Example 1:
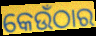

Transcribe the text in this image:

କେଉଁଠାର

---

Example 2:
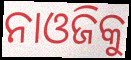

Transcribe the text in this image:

ନାଓଜିକୁ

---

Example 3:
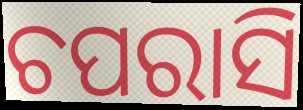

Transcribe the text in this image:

ଚପରାସି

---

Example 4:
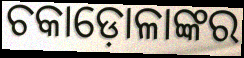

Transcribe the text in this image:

ଚକାଡ଼ୋଳାଙ୍କର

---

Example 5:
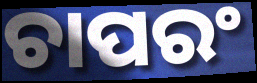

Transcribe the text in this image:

ଚାପରଂ